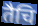
तैचि